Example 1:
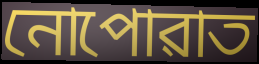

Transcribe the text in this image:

নোপোৱাত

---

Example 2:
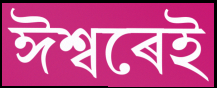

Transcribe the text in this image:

ঈশ্বৰেই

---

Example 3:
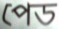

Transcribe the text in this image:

পেড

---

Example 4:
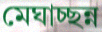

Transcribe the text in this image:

মেঘাচ্ছন্ন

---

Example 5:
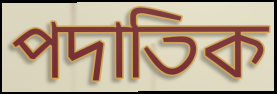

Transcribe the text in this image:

পদাতিক